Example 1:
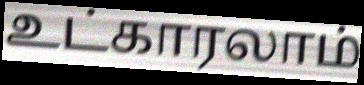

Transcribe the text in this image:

உட்காரலாம்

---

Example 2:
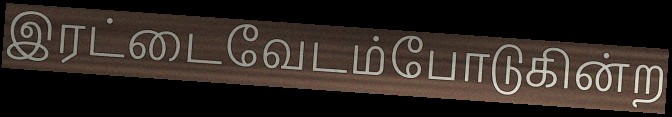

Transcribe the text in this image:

இரட்டைவேடம்போடுகின்ற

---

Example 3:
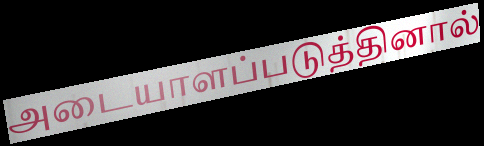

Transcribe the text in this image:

அடையாளப்படுத்தினால்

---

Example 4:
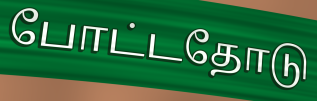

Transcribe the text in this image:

போட்டதோடு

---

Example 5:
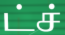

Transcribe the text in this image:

ட்ச்